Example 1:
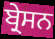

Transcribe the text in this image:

ਬ੍ਰੇਸਨ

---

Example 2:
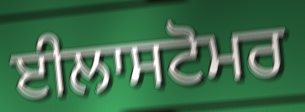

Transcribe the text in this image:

ਈਲਾਸਟੋਮਰ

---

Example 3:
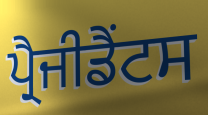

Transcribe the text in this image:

ਪ੍ਰੈਜੀਡੈਂਟਸ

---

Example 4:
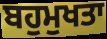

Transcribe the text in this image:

ਬਹੁਮੁਖਤਾ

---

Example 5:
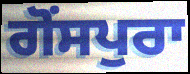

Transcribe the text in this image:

ਗੋਂਸਪੁਰਾ